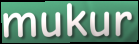
mukur